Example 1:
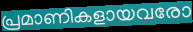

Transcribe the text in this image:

പ്രമാണികളായവരോ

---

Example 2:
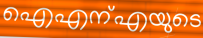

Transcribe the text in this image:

ഐഎന്എയുടെ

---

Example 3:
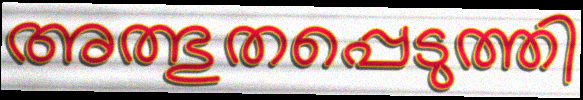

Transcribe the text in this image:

അത്ഭുതപ്പെടുത്തി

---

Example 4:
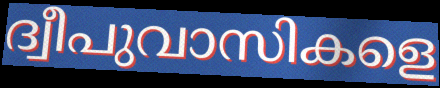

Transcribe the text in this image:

ദ്വീപുവാസികളെ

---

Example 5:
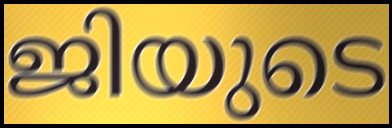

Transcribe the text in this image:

ജിയുടെ